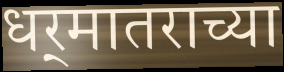
धर्मातराच्या